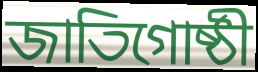
জাতিগোষ্ঠী